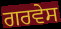
ਗਰਵੇਸ